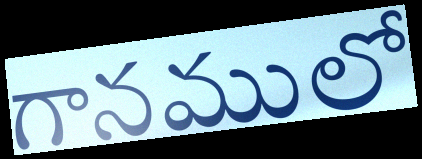
గానములో